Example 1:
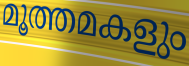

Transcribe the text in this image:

മൂത്തമകളും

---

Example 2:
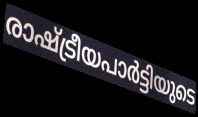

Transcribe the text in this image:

രാഷ്ട്രീയപാർട്ടിയുടെ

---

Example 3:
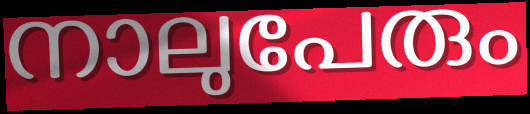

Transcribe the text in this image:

നാലുപേരും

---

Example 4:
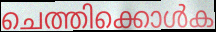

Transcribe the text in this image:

ചെത്തിക്കൊൾക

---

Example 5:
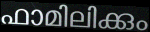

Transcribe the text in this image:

ഫാമിലിക്കും